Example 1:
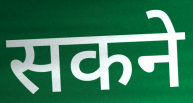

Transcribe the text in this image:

सकने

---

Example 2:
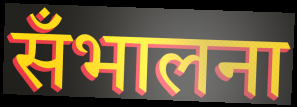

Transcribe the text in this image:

सँभालना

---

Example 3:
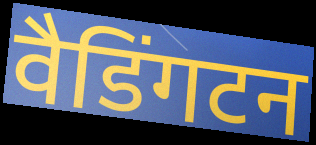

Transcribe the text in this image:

वैडिंगटन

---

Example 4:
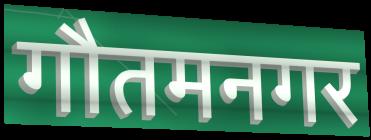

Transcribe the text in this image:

गौतमनगर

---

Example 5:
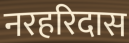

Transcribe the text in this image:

नरहरिदास